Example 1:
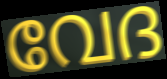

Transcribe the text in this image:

വേദ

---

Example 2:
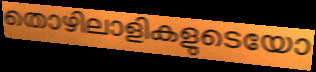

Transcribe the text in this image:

തൊഴിലാളികളുടെയോ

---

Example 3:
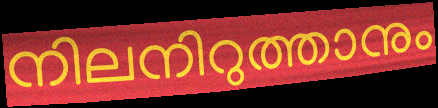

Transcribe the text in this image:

നിലനിറുത്താനും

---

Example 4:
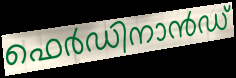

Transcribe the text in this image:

ഫെർഡിനാൻഡ്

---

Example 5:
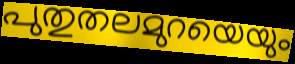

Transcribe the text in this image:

പുതുതലമുറയെയും